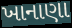
ખાનાણા